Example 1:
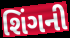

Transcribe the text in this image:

શિંગની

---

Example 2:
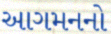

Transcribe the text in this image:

આગમનનો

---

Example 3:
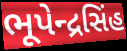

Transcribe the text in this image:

ભૂપેન્દ્રસિંહ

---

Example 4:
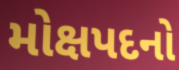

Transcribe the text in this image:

મોક્ષપદનો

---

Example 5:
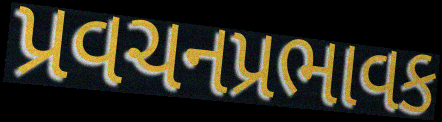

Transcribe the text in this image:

પ્રવચનપ્રભાવક